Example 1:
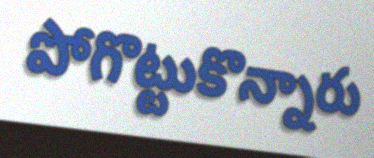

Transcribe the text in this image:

పోగొట్టుకొన్నారు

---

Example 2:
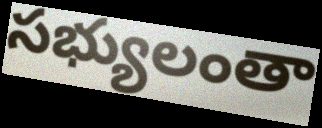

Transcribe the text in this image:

సభ్యులంతా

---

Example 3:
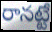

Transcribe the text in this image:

రానట్టే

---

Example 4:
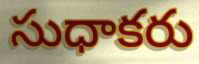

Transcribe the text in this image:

సుధాకరు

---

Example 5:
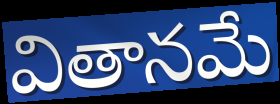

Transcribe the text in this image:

వితానమే